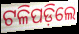
ଟଳିପଡ଼ିଲେ